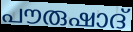
പൗരുഷാദ്